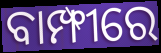
ବାମ୍ଫୀରେ